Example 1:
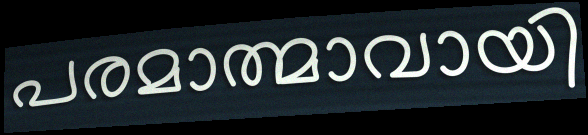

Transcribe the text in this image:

പരമാത്മാവായി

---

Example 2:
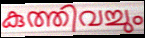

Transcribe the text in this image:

കുത്തിവച്ചും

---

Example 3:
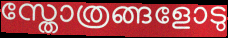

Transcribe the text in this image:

സ്തോത്രങ്ങളോടു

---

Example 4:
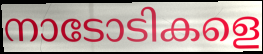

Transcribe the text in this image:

നാടോടികളെ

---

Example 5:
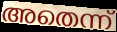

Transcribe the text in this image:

അതെന്ന്